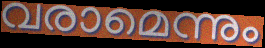
വരാമെന്നും